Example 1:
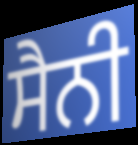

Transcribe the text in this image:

ਸੈਨੀ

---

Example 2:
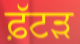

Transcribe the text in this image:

ਫ਼ੱਟੜ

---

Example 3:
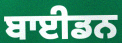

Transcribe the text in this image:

ਬਾਈਡਨ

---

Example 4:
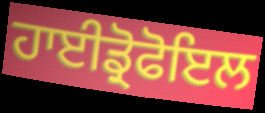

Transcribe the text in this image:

ਹਾਈਡ੍ਰੋਫੋਇਲ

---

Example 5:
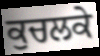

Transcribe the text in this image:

ਕੁਚਲਕੇ